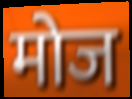
मोज